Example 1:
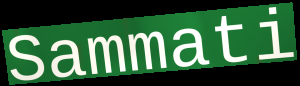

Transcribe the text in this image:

Sammati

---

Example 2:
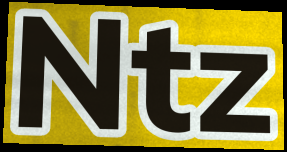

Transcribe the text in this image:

Ntz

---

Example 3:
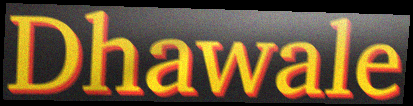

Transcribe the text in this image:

Dhawale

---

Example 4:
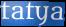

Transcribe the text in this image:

tatya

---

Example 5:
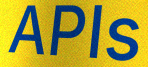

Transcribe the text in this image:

APIs